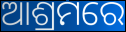
ଆଶ୍ରମରେ